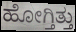
ಹೋಗ್ತಿತ್ತು